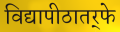
विद्यापीठातर्फे